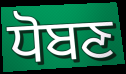
ਧੋਬਣ